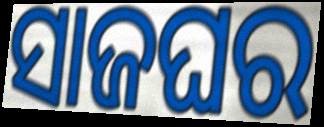
ସାଜଘର